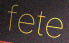
fete